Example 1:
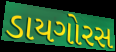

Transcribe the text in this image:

ડાયગોરસ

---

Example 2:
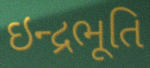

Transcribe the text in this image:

ઇન્દ્રભૂતિ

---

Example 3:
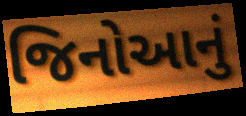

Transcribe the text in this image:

જિનોઆનું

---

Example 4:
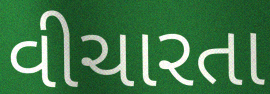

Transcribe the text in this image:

વીચારતા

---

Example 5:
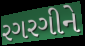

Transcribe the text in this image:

રગરગીને